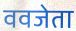
ववजेता